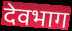
देवभाग